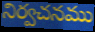
నిర్వచనము